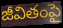
జీవితంపై